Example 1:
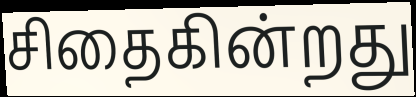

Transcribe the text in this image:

சிதைகின்றது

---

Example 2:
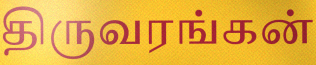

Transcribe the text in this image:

திருவரங்கன்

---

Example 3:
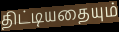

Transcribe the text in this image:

திட்டியதையும்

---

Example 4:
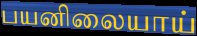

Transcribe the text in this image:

பயனிலையாய்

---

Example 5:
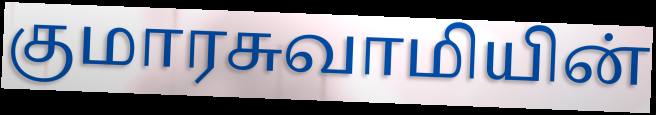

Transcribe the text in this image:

குமாரசுவாமியின்